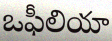
ఒఫీలియా